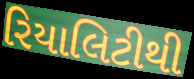
રિયાલિટીથી